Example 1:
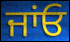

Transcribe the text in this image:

ਜਾਂਓ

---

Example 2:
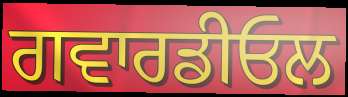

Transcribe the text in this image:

ਗਵਾਰਡੀਓਲ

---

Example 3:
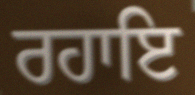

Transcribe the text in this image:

ਰਹਾਇ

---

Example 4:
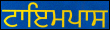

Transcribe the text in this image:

ਟਾਇਮਪਾਸ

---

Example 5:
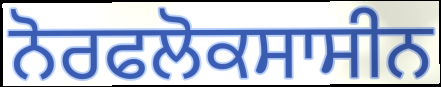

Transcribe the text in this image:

ਨੋਰਫਲੋਕਸਾਸੀਨ